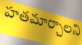
హతమార్చాలని